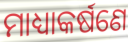
ମାଧ୍ୟାକର୍ଷଣେ